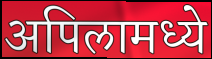
अपिलामध्ये